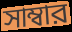
সাম্বার